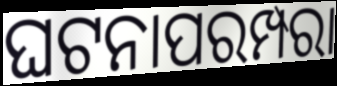
ଘଟନାପରମ୍ପରା